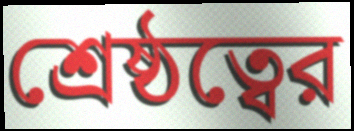
শ্রেষ্ঠত্বের